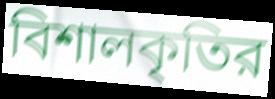
বিশালকৃতির